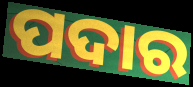
ପଦାର